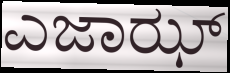
ಎಜಾಝ್